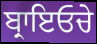
ਬ੍ਰਾਇਓਚੇ